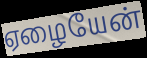
ஏழையேன்